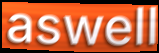
aswell